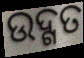
ଉଦ୍ଗତ